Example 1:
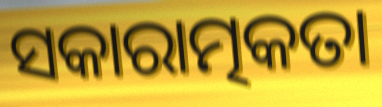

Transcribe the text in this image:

ସକାରାତ୍ମକତା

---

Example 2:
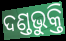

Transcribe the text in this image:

ଦଣ୍ଡଭୁକ୍ତି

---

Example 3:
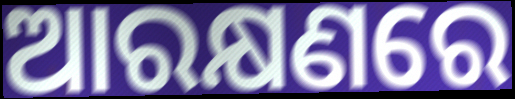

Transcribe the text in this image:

ଆରକ୍ଷଣରେ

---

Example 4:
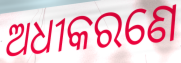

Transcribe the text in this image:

ଅଧୀକରଣେ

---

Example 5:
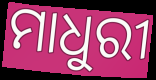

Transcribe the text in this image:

ମାଧୁରୀ